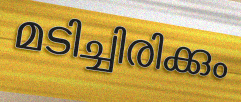
മടിച്ചിരിക്കും